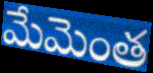
మేమెంత